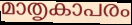
മാതൃകാപരം